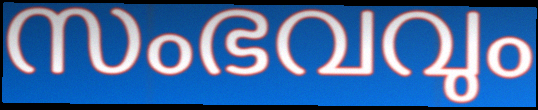
സംഭവവും